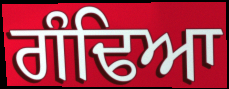
ਗੰਢਿਆ